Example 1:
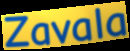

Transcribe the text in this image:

Zavala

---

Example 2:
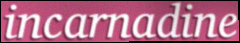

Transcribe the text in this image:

incarnadine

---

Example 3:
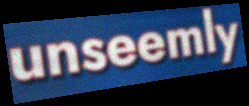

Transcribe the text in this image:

unseemly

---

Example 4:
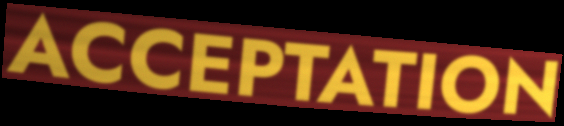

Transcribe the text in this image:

ACCEPTATION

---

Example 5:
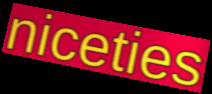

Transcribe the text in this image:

niceties